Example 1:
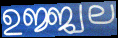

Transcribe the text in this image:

ഉജ്ജ്വല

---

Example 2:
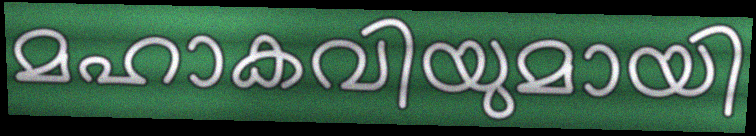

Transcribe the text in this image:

മഹാകവിയുമായി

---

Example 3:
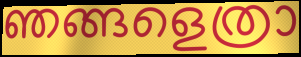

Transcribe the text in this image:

ഞങ്ങളെത്രാ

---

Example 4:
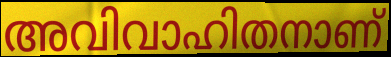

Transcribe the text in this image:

അവിവാഹിതനാണ്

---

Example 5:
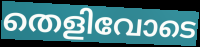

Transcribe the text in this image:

തെളിവോടെ